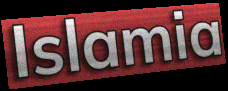
Islamia